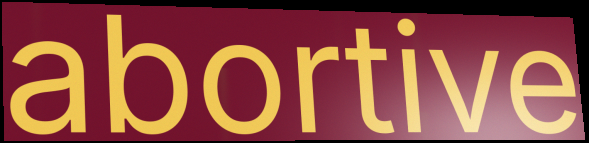
abortive